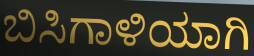
ಬಿಸಿಗಾಳಿಯಾಗಿ